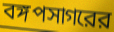
বঙ্গপসাগরের